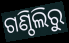
ଗଣ୍ଠିଲିରୁ